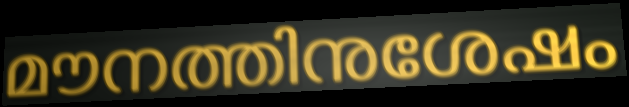
മൗനത്തിനുശേഷം